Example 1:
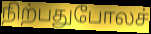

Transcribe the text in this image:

நிற்பதுபோலச்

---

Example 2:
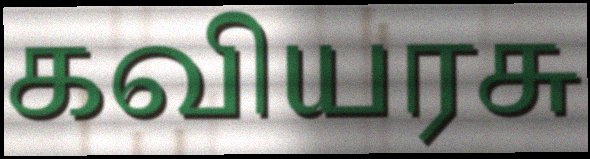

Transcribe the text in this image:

கவியரசு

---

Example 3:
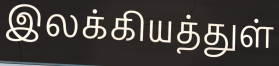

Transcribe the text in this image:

இலக்கியத்துள்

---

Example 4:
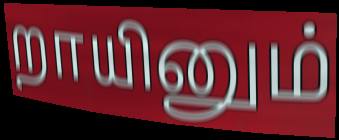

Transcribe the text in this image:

றாயினும்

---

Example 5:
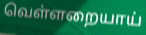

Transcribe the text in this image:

வெள்ளறையாய்